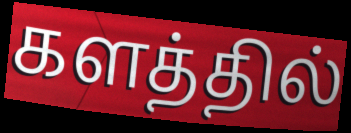
களத்தில்